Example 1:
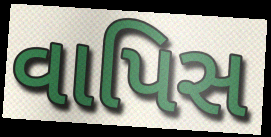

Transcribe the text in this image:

વાપિસ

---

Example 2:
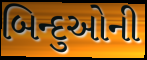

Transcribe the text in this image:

બિન્દુઓની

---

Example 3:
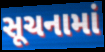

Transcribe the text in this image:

સૂચનામાં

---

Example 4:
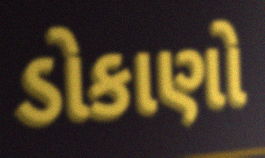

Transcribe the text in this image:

ડોકાણો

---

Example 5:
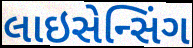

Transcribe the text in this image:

લાઇસેન્સિંગ